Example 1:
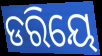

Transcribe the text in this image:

ଡରିୟେ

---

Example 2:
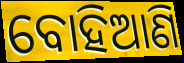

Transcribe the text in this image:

ବୋହିଆଣି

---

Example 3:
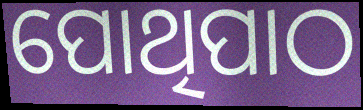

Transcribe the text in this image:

ପୋଥିପାଠ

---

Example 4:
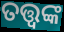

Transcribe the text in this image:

ତତ୍ତ୍ବଙ୍କ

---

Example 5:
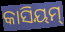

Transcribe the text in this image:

କାସିୟମ୍